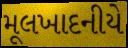
મૂલખાદનીયે